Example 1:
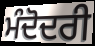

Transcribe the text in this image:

ਮੰਦੋਦਰੀ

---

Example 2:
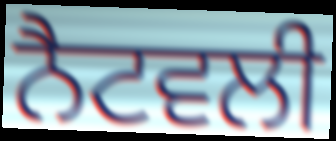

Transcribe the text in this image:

ਨੈਟਵਲੀ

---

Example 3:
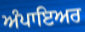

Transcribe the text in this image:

ਅੰਪਾਇਅਰ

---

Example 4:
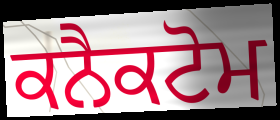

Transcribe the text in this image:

ਕਨੈਕਟੋਮ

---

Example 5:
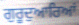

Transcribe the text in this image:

ਗੁਰੂਦੁਆਰਿਆਂ